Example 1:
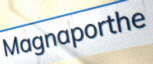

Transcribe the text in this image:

Magnaporthe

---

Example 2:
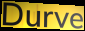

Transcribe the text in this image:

Durve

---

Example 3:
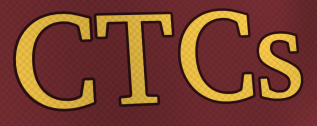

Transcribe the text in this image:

CTCs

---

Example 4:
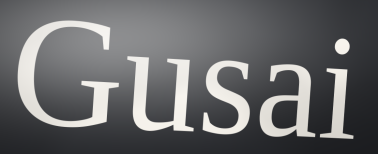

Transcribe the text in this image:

Gusai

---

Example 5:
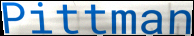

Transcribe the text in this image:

Pittman